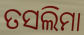
ତସଲିମା